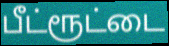
பீட்ரூட்டை